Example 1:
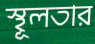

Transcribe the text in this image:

স্থূলতার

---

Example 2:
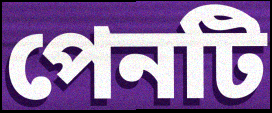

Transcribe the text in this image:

পেনটি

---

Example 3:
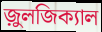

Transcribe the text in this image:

জ়ুলজিক্যাল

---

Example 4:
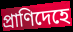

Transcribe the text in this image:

প্রাণিদেহে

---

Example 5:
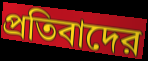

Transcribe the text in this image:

প্রতিবাদের